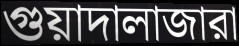
গুয়াদালাজারা